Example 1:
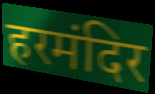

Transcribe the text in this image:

हरमंदिर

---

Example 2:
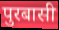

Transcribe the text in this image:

पुरबासी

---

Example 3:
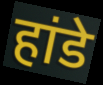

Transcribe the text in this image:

हांडे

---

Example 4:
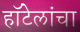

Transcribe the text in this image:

हॉटेलांचा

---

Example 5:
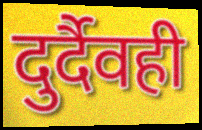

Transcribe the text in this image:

दुर्दैवही